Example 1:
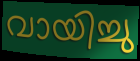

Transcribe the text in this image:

വായിച്ചു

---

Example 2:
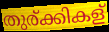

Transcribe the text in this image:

തുര്ക്കികള്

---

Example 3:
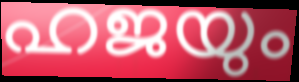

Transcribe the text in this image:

ഹജയും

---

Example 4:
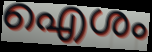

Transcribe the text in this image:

ഐശം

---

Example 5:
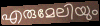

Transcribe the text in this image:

എരുമേലിയും